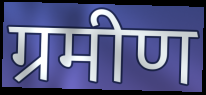
ग्रमीण